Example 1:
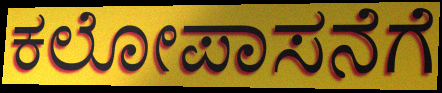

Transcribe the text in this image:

ಕಲೋಪಾಸನೆಗೆ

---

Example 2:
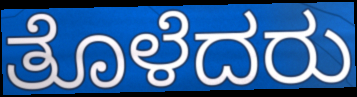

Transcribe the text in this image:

ತೊಳೆದರು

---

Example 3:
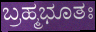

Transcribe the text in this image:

ಬ್ರಹ್ಮಭೂತಃ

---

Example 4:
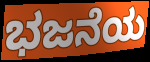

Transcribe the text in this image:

ಭಜನೆಯ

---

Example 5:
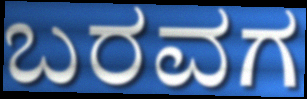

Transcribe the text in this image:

ಬರವಗ